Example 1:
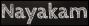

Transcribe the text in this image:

Nayakam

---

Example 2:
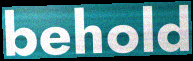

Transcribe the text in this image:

behold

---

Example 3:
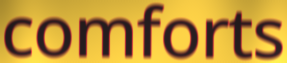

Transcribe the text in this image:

comforts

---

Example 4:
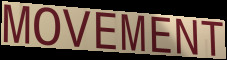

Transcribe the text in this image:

MOVEMENT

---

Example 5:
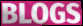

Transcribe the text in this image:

BLOGS